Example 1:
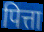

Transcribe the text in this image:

पित्ता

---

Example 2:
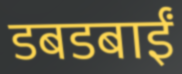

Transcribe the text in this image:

डबडबाईं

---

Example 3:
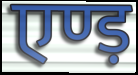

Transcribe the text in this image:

एण्ड़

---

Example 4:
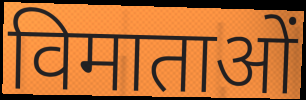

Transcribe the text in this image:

विमाताओं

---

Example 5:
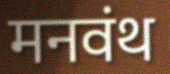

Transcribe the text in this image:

मनवंथ